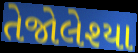
તેજોલેશ્યા